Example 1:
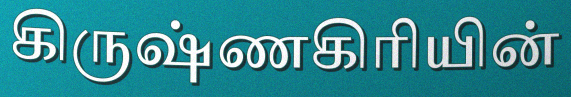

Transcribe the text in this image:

கிருஷ்ணகிரியின்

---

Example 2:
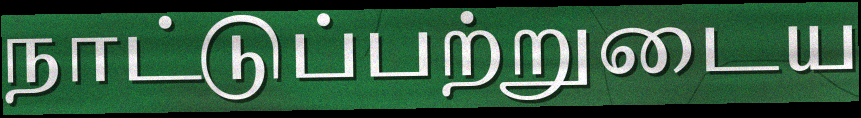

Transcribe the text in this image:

நாட்டுப்பற்றுடைய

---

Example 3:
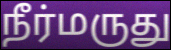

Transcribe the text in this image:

நீர்மருது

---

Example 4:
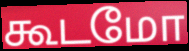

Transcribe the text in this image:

கூடமோ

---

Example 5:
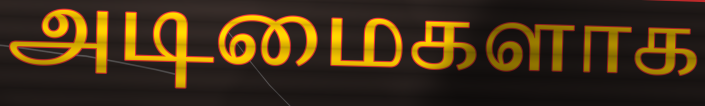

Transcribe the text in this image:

அடிமைகளாக